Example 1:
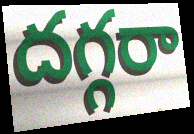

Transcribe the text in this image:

దగ్గరా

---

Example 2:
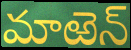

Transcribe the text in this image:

మాఱెన్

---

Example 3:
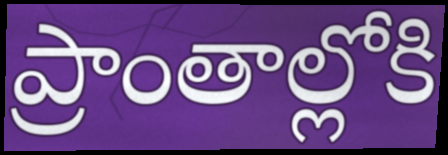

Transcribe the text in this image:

ప్రాంతాల్లోకి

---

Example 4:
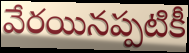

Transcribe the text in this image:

వేరయినప్పటికీ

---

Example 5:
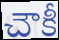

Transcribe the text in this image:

చౌకీ